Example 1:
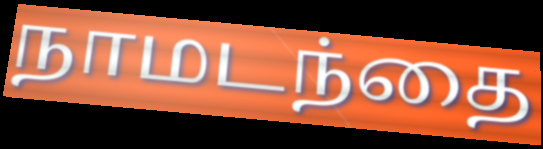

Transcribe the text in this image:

நாமடந்தை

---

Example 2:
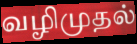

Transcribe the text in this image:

வழிமுதல்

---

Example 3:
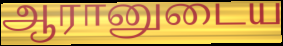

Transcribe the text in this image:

ஆரானுடைய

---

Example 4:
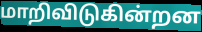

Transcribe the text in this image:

மாறிவிடுகின்றன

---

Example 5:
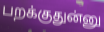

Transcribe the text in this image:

பறக்குதுன்னு